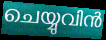
ചെയ്യുവിൻ